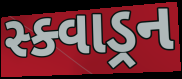
સ્ક્વાડ્રન